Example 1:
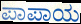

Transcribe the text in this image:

ಪಾಪಾಯ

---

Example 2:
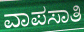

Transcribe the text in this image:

ವಾಪಸಾತಿ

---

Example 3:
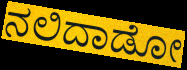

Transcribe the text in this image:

ನಲಿದಾಡೋ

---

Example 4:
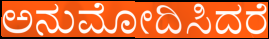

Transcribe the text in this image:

ಅನುಮೋದಿಸಿದರೆ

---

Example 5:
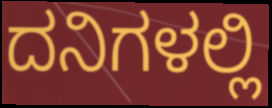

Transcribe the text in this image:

ದನಿಗಳಲ್ಲಿ